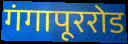
गंगापूररोड